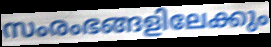
സംരംഭങ്ങളിലേക്കും